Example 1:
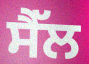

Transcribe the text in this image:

ਸੈੱਲ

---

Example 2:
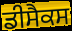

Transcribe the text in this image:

ਡੀਸੈਕਸ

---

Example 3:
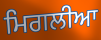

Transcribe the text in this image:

ਮਿਗਲੀਆ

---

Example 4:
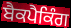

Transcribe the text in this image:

ਬੈਕਪੈਕਿੰਗ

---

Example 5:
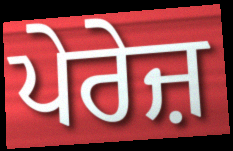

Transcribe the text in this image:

ਪੇਰੇਜ਼